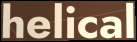
helical